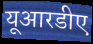
यूआरडीए